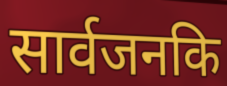
सार्वजनकि